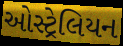
ઓસ્ટ્રેલિયન